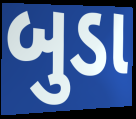
બુડા